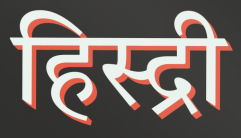
हिस्द्री